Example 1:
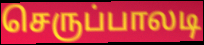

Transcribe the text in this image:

செருப்பாலடி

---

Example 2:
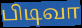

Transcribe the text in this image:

பிடிவா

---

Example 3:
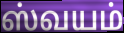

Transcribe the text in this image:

ஸ்வயம்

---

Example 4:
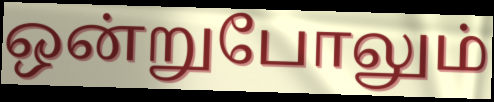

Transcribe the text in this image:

ஒன்றுபோலும்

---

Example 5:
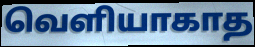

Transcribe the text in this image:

வெளியாகாத